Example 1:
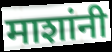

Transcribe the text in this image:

माशांनी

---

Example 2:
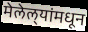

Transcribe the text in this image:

मेलेल्यांमधून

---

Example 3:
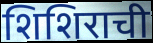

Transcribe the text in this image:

शिशिराची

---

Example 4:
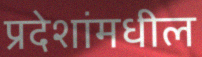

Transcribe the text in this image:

प्रदेशांमधील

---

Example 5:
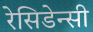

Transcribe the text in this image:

रेसिडेन्सी